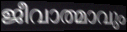
ജീവാത്മാവും